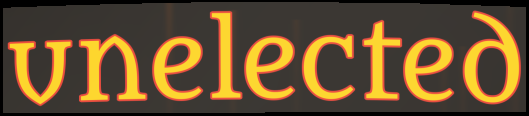
unelected